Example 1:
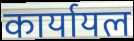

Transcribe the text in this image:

कार्यायल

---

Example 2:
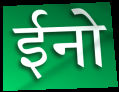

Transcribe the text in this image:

ईनो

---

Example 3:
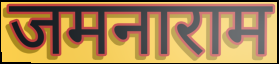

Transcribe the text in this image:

जमनाराम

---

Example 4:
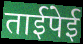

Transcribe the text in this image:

ताईपेई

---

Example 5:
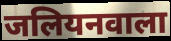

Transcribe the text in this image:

जलियनवाला